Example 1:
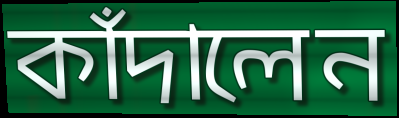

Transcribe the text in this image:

কাঁদালেন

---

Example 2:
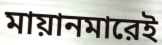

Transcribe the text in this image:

মায়ানমারেই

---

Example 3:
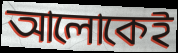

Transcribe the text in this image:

আলোকেই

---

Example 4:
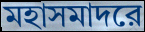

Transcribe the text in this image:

মহাসমাদরে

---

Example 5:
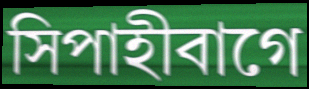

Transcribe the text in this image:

সিপাহীবাগে